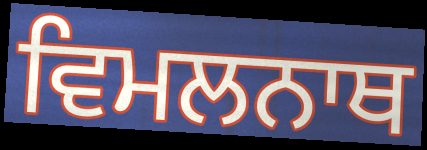
ਵਿਮਲਨਾਥ